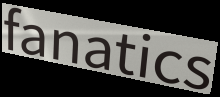
fanatics